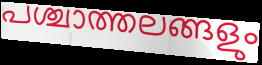
പശ്ചാത്തലങ്ങളും